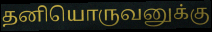
தனியொருவனுக்கு